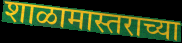
शाळामास्तराच्या